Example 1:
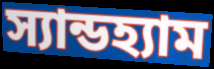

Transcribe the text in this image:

স্যান্ডহ্যাম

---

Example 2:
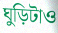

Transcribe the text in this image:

ঘুড়িটাও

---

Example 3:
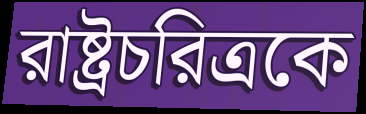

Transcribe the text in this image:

রাষ্ট্রচরিত্রকে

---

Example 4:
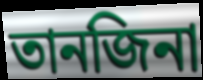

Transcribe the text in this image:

তানজিনা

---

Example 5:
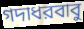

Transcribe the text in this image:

গদাধরবাবু